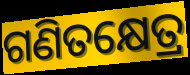
ଗଣିତକ୍ଷେତ୍ର